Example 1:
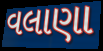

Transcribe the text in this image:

વલાણા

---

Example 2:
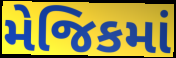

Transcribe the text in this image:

મેજિકમાં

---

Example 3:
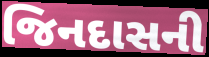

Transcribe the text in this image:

જિનદાસની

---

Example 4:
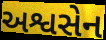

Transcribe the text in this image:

અશ્વસેન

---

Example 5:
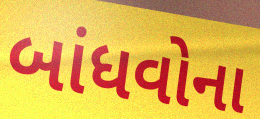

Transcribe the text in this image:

બાંધવોના